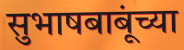
सुभाषबाबूंच्या